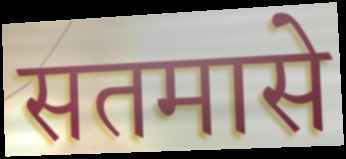
सतमासे